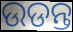
ଉଡନ୍ତ